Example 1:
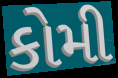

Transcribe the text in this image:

કોમી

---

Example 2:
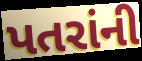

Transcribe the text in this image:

પતરાંની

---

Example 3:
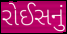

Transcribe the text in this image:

રોઈસનું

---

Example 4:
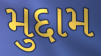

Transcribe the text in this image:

મુદ્દામ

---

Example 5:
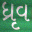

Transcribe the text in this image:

ધ્રૃવ